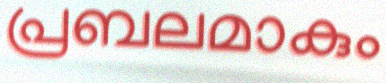
പ്രബലമാകും